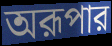
অরূপার